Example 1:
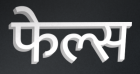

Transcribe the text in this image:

फेल्स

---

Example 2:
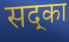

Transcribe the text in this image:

सद्का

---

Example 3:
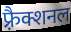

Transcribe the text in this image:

फ़्रैक्शनल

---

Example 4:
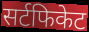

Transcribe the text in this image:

सर्टफिकेट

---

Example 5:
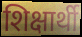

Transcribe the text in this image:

शिक्षार्थी